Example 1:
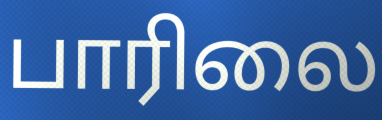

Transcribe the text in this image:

பாரிலை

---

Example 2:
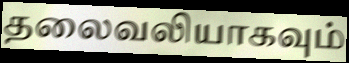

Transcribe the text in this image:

தலைவலியாகவும்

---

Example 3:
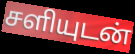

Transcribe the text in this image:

சளியுடன்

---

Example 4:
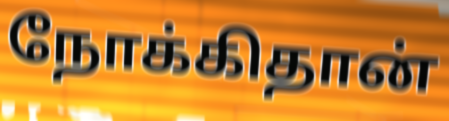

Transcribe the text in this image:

நோக்கிதான்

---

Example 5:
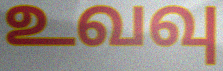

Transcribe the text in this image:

உவவு